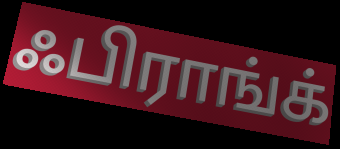
ஃபிராங்க்